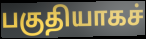
பகுதியாகச்